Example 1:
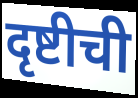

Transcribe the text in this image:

दृष्टीची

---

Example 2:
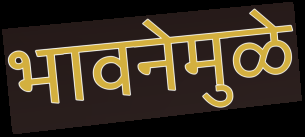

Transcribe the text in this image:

भावनेमुळे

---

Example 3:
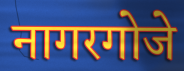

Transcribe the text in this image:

नागरगोजे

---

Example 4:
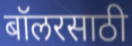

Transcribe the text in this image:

बॉलरसाठी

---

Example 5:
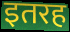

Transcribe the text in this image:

इतरह